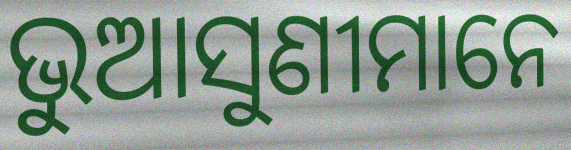
ଭୁଆସୁଣୀମାନେ